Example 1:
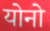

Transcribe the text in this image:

योनो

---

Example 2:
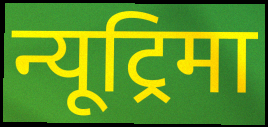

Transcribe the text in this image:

न्यूट्रिमा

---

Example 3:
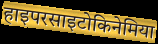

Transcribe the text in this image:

हाइपरसाइटोकिनेमिया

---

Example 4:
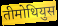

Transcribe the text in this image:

तीमोथियुस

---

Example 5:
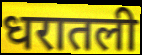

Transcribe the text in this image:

धरातली